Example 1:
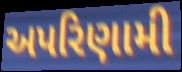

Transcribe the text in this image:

અપરિણામી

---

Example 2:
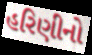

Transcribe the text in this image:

હરિણીનો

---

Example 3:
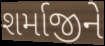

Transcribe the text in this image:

શર્માજીને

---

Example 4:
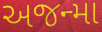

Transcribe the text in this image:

અજન્મા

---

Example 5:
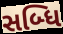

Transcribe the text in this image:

સબ્ધિ